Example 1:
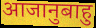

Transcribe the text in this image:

आजानुबाहु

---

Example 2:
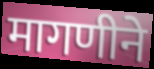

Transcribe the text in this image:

मागणीने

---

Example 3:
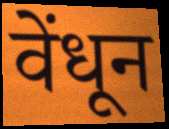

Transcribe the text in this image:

वेंधून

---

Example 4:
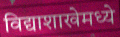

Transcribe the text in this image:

विद्याशाखेमध्ये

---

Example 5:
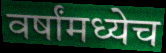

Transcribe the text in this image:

वर्षांमध्येच